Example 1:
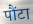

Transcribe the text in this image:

पौंटा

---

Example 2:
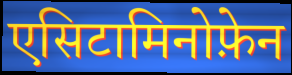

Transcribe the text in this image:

एसिटामिनोफ़ेन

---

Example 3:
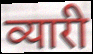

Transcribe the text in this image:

व्यारी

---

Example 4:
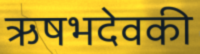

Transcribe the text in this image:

ऋषभदेवकी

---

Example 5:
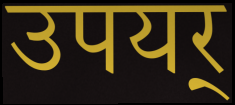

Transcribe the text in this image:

उपयर्